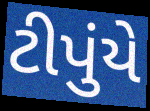
ટીપુંયે